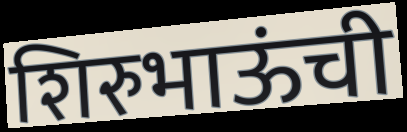
शिरुभाऊंची